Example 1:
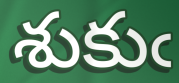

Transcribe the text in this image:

శుకుఁ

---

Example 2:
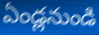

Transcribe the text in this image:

ఏండ్లనుండి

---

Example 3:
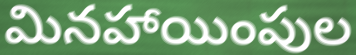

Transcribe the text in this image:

మినహాయింపుల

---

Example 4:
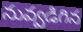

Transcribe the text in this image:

నువ్వడిగిన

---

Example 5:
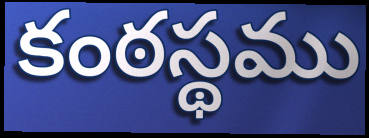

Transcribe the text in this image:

కంఠస్థము